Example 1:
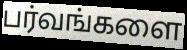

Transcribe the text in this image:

பர்வங்களை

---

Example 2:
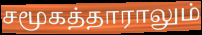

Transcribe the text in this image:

சமூகத்தாராலும்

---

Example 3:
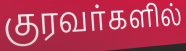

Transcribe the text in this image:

குரவர்களில்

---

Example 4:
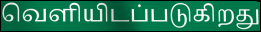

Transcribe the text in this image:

வெளியிடப்படுகிறது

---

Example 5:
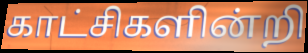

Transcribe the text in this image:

காட்சிகளின்றி